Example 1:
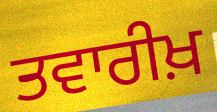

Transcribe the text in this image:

ਤਵਾਰੀਖ਼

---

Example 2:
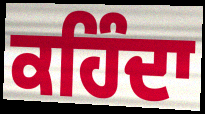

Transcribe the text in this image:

ਕਹਿੰਦਾ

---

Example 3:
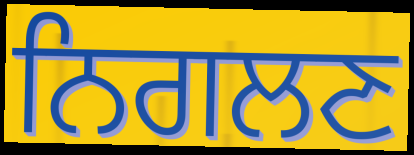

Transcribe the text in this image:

ਨਿਗਲਣ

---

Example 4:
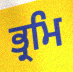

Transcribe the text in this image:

ਭ੍ਰਮਿ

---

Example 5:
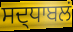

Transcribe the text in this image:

ਸਦ੍ਧਾਬਲਂ